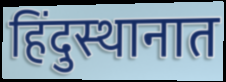
हिंदुस्थानात